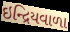
ઇન્દ્રિયવાળા